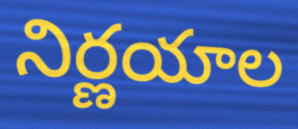
నిర్ణయాల